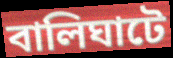
বালিঘাটে